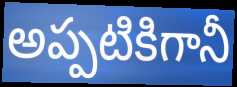
అప్పటికిగానీ